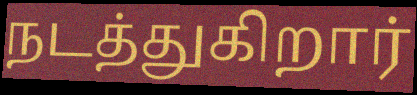
நடத்துகிறார்